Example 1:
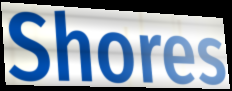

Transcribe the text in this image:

Shores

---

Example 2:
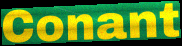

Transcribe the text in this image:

Conant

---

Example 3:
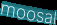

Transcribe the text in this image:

moosal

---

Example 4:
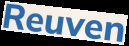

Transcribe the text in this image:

Reuven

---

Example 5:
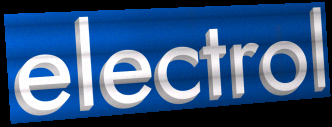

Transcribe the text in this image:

electrol